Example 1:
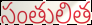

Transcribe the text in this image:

సంతులిత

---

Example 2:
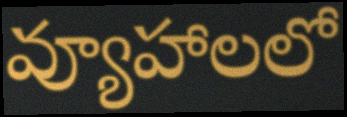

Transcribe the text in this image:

వ్యూహాలలో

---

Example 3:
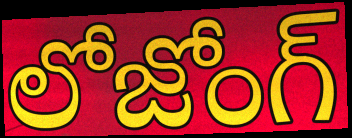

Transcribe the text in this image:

లోజోంగ్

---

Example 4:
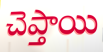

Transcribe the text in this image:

చెప్తాయి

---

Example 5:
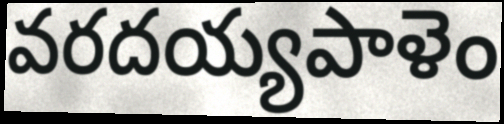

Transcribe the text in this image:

వరదయ్యపాళెం